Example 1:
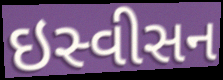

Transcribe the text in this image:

ઇસ્વીસન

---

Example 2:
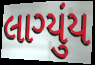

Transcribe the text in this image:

લાગ્યુંય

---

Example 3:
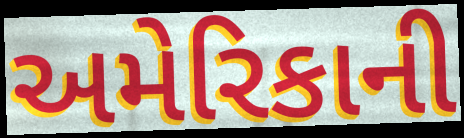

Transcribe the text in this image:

અમેરિકાની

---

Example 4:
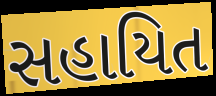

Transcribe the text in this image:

સહાયિત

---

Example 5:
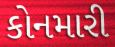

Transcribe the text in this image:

કોનમારી